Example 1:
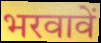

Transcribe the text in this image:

भरवावें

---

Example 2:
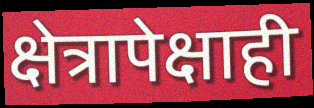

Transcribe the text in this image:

क्षेत्रापेक्षाही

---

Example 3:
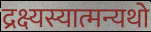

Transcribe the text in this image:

द्रक्ष्यस्यात्मन्यथो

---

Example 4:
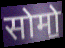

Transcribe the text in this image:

सोमो॒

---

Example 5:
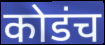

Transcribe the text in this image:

कोडंच